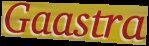
Gaastra